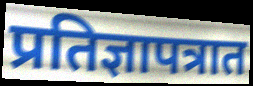
प्रतिज्ञापत्रात